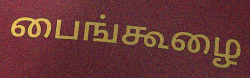
பைங்கூழை